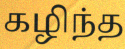
கழிந்த